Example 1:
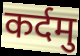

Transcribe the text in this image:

कर्दमु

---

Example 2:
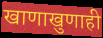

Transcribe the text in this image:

खाणाखुणाही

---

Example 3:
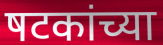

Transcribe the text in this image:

षटकांच्या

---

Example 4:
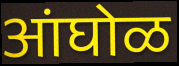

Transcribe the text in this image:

आंघोळ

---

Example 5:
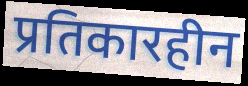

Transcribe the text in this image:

प्रतिकारहीन